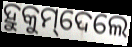
ହୁକୁମ୍‌ଦେଲେ